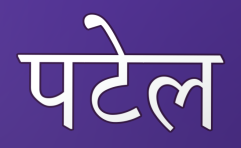
पटेल